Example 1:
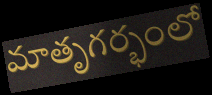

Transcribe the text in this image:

మాతృగర్భంలో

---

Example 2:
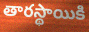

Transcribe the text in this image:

తారస్థాయికి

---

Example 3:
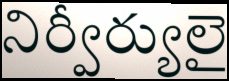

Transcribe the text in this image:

నిర్వీర్యులై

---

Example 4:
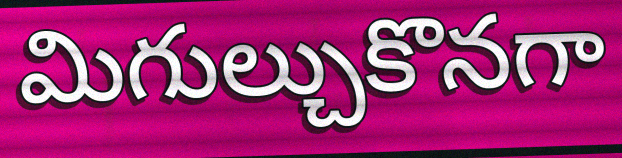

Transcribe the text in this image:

మిగుల్చుకొనగా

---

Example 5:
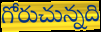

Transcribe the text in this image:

గోరుచున్నది